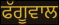
ਫੱਗੂਵਾਲ